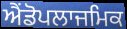
ਐਂਡੋਪਲਾਜਮਿਕ